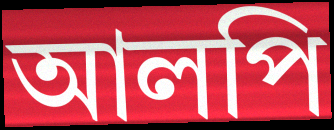
আলপি